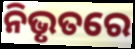
ନିଭୃତରେ